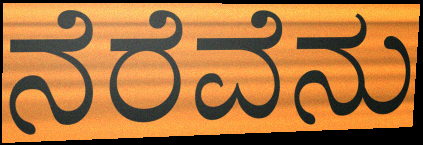
ನೆರೆವೆನು